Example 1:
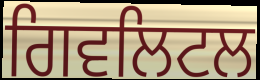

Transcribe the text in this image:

ਗਿਵਲਿਟਲ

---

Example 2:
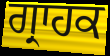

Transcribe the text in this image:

ਗ੍ਰਾਹਕ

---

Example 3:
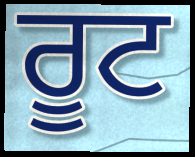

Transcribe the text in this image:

ਰੂਟ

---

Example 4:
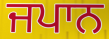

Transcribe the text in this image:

ਜਪਾਨ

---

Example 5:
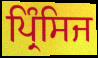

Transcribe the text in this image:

ਪ੍ਰਿੰਸਿਜ